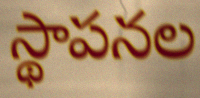
స్థాపనల